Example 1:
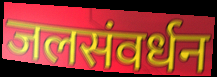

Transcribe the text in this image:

जलसंवर्धन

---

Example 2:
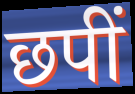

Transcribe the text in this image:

छपीं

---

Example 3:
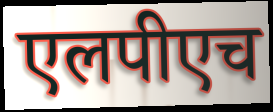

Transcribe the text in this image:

एलपीएच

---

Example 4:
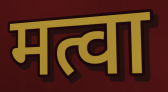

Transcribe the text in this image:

मत्वा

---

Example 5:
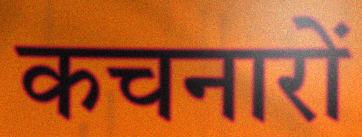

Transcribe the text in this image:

कचनारों